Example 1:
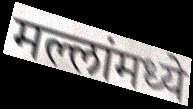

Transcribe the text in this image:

मल्लांमध्ये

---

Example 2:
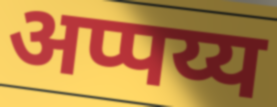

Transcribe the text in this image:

अप्पय्य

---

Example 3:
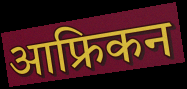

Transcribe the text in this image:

आफ्रिकन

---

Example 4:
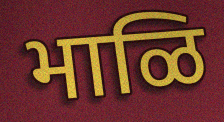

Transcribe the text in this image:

भाळि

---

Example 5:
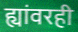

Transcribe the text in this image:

ह्यांवरही